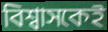
বিশ্বাসকেই